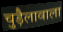
चुड़ैलावाला